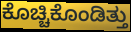
ಕೊಚ್ಚಿಕೊಂಡಿತ್ತು